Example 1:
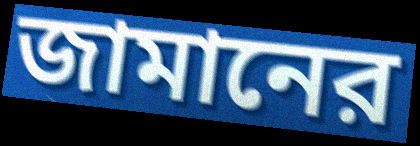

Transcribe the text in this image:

জামানের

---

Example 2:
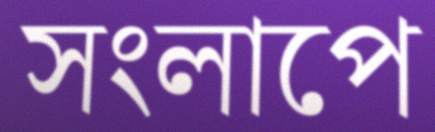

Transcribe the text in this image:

সংলাপে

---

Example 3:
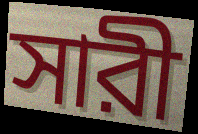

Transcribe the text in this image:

সারী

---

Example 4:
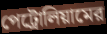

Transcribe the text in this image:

পেট্রোলিয়ামের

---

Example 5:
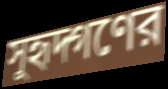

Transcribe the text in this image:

সুহৃদ্গণের